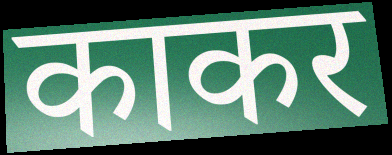
काकर